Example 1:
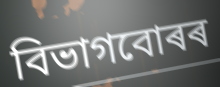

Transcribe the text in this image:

বিভাগবোৰৰ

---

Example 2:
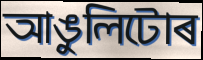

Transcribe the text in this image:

আঙুলিটোৰ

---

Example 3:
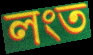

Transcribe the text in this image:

লংত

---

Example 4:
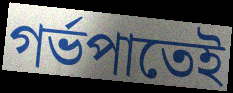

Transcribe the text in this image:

গৰ্ভপাতেই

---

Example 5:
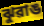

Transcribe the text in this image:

ঝুৱাঙ